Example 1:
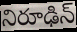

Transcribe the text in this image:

నిరూఢిన్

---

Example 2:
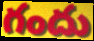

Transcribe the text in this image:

గందు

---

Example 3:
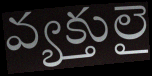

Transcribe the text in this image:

వ్యక్తులై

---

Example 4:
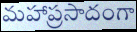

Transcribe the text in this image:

మహాప్రసాదంగా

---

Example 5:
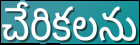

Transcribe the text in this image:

చేరికలను